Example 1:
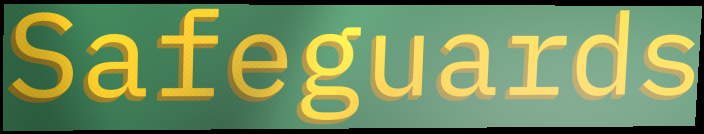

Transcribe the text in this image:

Safeguards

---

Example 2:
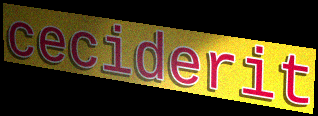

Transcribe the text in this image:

ceciderit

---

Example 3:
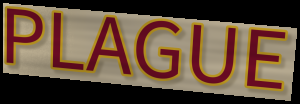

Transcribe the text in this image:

PLAGUE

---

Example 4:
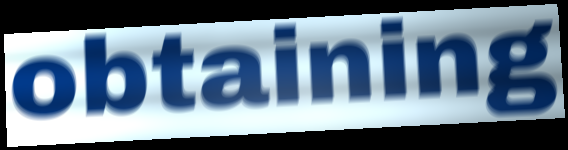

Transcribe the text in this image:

obtaining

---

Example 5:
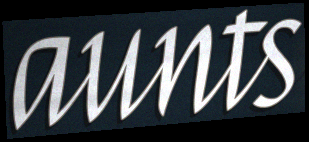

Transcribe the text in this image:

aunts